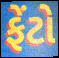
ફેંટો